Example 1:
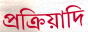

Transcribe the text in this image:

প্রক্রিয়াদি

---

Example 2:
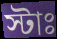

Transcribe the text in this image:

স্টাঃ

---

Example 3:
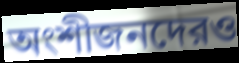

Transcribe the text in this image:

অংশীজনদেরও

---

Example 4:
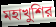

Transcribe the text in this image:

মহাখুশির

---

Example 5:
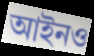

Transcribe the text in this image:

আইনও